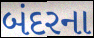
બંદરના